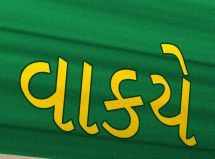
વાકયે